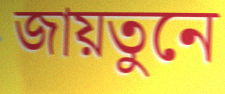
জায়তুনে